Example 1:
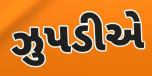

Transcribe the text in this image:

ઝુપડીએ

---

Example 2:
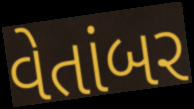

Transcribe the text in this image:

વેતાંબર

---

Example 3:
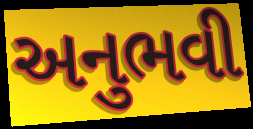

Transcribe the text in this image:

અનુભવી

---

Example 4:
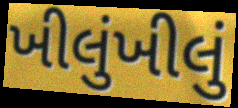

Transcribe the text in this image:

ખીલુંખીલું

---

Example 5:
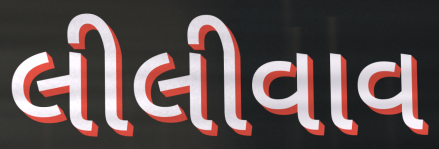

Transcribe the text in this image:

લીલીવાવ